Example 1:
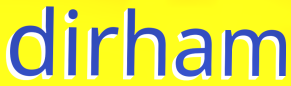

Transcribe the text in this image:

dirham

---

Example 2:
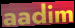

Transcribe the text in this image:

aadim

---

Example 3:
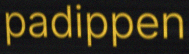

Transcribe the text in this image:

padippen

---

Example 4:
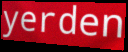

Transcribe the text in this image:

yerden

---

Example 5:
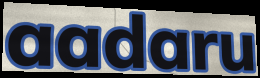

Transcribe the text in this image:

aadaru